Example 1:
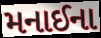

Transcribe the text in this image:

મનાઈના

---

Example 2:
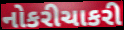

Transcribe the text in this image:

નોકરીચાકરી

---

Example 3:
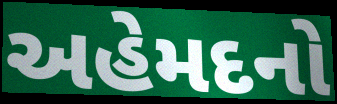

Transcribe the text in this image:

અહેમદનો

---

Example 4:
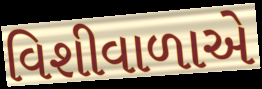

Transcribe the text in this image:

વિશીવાળાએ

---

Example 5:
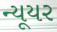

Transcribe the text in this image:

ન્યૂયર